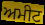
ਅਮੀਟ